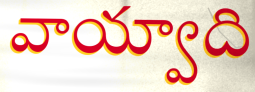
వాయ్వాది